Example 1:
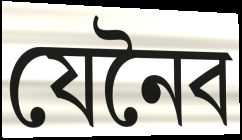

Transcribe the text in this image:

যেনৈব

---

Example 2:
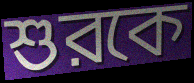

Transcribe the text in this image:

শুরকে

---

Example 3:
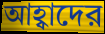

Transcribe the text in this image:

আহ্বাদের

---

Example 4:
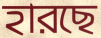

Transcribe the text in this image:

হারছে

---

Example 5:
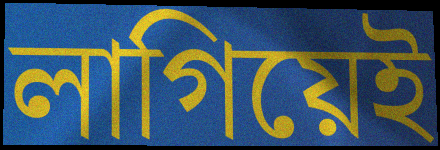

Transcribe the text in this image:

লাগিয়েই